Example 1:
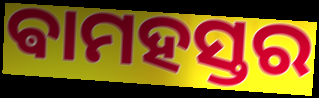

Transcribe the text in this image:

ଵାମହସ୍ତର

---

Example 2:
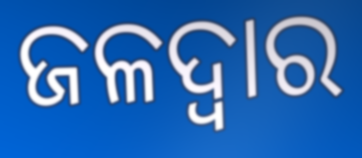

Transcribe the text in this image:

ଜଳଦ୍ୱାର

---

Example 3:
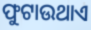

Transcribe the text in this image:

ଫୁଟାଉଥାଏ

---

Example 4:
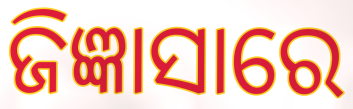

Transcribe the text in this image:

ଜିଜ୍ଞାସାରେ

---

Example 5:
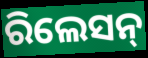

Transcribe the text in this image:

ରିଲେସନ୍